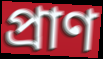
প্ৰাণ